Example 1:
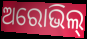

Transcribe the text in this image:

ଅରୋଭିଲ୍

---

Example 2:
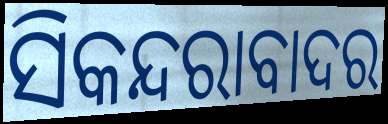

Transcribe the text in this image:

ସିକନ୍ଦରାବାଦର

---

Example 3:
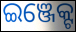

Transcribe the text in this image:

ଇଞ୍ଜେକ୍ଟ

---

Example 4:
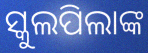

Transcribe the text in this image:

ସ୍କୁଲପିଲାଙ୍କ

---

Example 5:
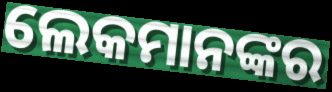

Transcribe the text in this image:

ଲେକମାନଙ୍କର